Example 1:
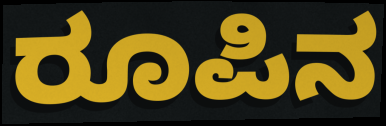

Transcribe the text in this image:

ರೂಪಿನ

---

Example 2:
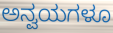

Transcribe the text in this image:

ಅನ್ವಯಗಳೂ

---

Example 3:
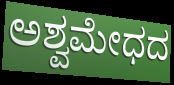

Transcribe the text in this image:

ಅಶ್ವಮೇಧದ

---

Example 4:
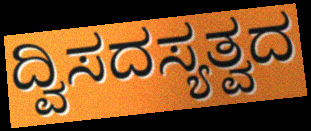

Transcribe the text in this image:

ದ್ವಿಸದಸ್ಯತ್ವದ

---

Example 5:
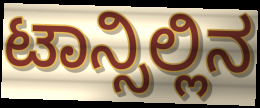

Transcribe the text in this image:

ಟಾನ್ಸಿಲ್ಲಿನ